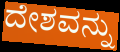
ದೇಶವನ್ನು